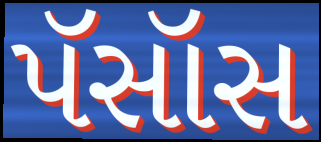
પૅસૉસ